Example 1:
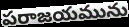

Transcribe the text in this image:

పరాజయమును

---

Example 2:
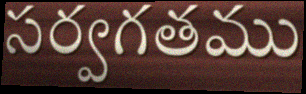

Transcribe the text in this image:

సర్వగతము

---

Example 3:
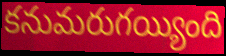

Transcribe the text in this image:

కనుమరుగయ్యింది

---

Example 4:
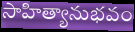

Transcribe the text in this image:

సాహిత్యానుభవం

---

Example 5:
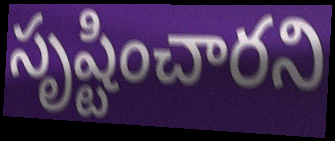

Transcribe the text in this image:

సృష్టించారని